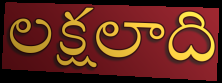
లక్షలాది